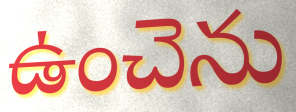
ఉంచెను